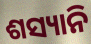
ଶସ୍ୟାନି